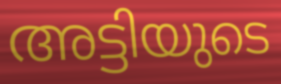
അട്ടിയുടെ